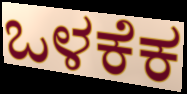
ಒಳಕೆಕ